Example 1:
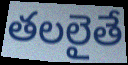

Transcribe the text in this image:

తలలైతే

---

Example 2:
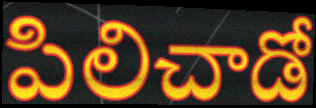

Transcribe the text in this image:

పిలిచాడో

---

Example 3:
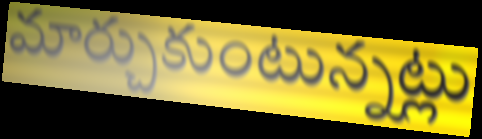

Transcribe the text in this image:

మార్చుకుంటున్నట్లు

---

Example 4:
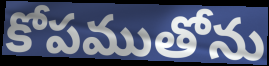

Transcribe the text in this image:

కోపముతోను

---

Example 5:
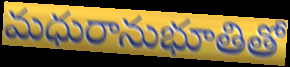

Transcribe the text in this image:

మధురానుభూతితో